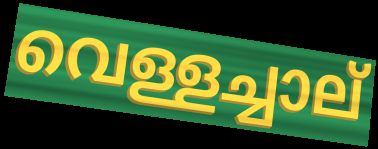
വെള്ളച്ചാല്